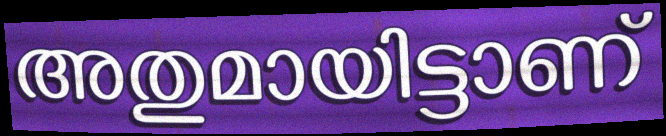
അതുമായിട്ടാണ്